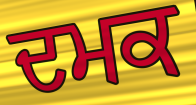
ਦਮਕ